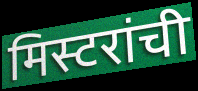
मिस्टरांची